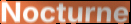
Nocturne